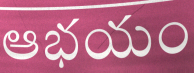
ఆభయం